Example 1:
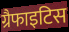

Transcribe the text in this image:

ग्रैफाइटिस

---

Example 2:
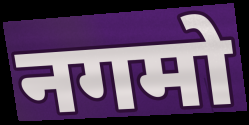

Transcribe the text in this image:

नगमो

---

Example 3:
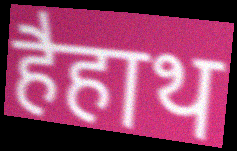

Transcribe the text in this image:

हैहाथ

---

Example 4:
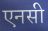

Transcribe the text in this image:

एनसी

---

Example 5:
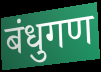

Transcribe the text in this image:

बंधुगण